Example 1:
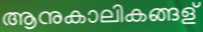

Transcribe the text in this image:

ആനുകാലികങ്ങള്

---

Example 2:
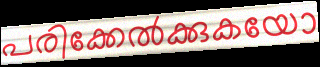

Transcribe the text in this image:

പരിക്കേൽക്കുകയോ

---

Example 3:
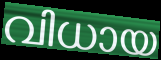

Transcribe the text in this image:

വിധായ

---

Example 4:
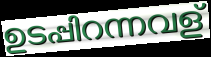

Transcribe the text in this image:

ഉടപ്പിറന്നവള്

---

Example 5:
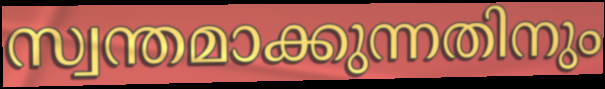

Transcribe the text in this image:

സ്വന്തമാക്കുന്നതിനും